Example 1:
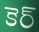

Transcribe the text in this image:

కెర్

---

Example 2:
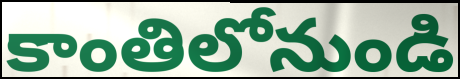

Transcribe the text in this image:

కాంతిలోనుండి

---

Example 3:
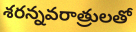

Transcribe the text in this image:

శరన్నవరాత్రులతో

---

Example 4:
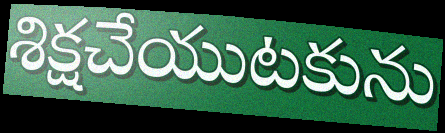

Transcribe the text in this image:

శిక్షచేయుటకును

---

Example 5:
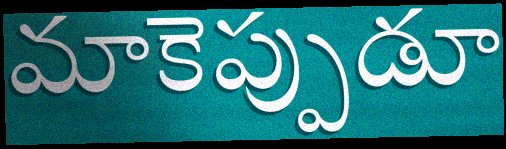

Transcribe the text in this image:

మాకెప్పుడూ